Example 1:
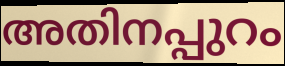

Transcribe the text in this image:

അതിനപ്പുറം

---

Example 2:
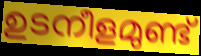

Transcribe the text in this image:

ഉടനീളമുണ്ട്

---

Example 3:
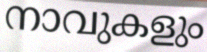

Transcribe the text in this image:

നാവുകളും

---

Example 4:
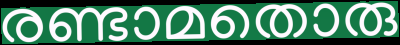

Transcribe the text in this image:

രണ്ടാമതൊരു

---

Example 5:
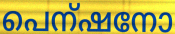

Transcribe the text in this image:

പെന്ഷനോ